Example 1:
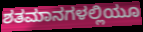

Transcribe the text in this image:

ಶತಮಾನಗಳಲ್ಲಿಯೂ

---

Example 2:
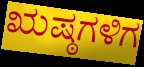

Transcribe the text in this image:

ಋಷ್ಠಗಳಿಗ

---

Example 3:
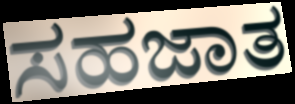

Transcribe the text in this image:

ಸಹಜಾತ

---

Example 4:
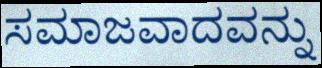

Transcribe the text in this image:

ಸಮಾಜವಾದವನ್ನು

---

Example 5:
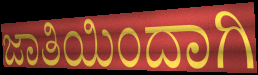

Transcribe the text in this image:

ಜಾತಿಯಿಂದಾಗಿ